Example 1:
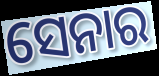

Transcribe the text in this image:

ସେନାର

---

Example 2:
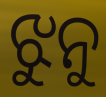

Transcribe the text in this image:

ଝୁନୁ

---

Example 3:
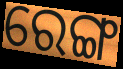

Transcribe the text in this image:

ରେଙ୍ଗ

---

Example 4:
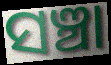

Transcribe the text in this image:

ସଞ୍ଚା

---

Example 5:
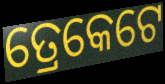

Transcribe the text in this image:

ତ୍ରେକେଟେ